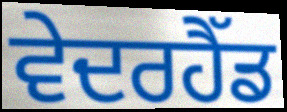
ਵੇਦਰਹੈੱਡ